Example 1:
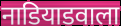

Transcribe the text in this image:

नाडियाडवाला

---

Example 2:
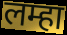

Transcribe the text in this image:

लम्हा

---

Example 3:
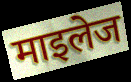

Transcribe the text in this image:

माइलेज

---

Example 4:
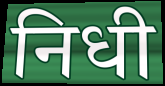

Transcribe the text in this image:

निधी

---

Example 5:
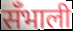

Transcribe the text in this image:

सँभाली